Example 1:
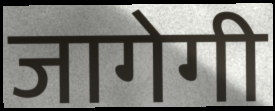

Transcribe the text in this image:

जागेगी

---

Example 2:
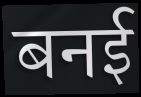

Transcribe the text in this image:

बनई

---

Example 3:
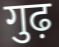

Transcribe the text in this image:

गुढ़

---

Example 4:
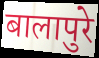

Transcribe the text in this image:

बालापुरे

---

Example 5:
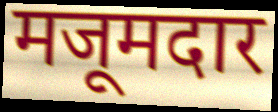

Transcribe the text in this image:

मजूमदार